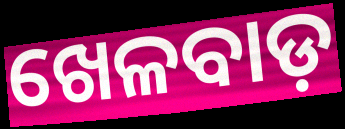
ଖେଳବାଡ଼